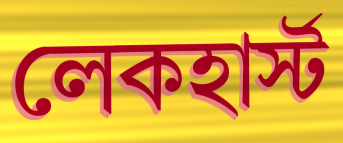
লেকহার্স্ট